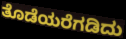
ತೊಡೆಯರೆಗಡಿದು